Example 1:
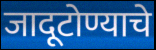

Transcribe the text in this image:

जादूटोण्याचे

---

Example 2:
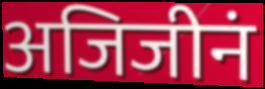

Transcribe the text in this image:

अजिजीनं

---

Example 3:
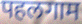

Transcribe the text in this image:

पहलगाम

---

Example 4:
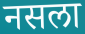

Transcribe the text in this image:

नसला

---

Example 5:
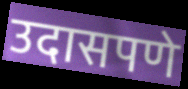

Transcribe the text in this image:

उदासपणे